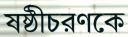
ষষ্ঠীচরণকে